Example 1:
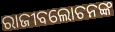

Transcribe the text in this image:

ରାଜୀବଲୋଚନଙ୍କ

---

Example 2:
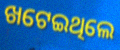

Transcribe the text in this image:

ଖଟେଇଥିଲେ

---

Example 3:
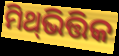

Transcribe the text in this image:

ମିଥ୍‍ଭିତ୍ତିକ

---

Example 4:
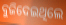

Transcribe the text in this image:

ବୁଜିଦେଇଥିଲେ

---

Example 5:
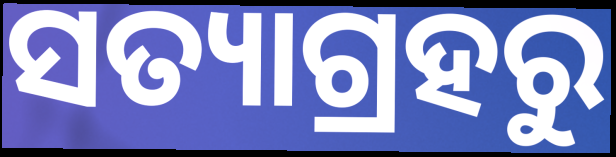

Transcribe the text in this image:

ସତ୍ୟାଗ୍ରହରୁ